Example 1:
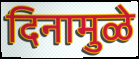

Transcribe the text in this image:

दिनामुळे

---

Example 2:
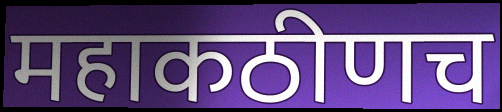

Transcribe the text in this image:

महाकठीणच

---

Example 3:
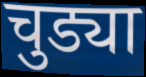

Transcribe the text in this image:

चुड्या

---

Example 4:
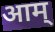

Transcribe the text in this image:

आम्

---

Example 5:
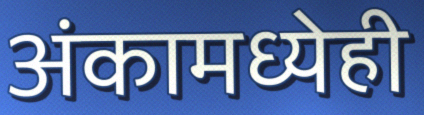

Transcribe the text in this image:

अंकामध्येही